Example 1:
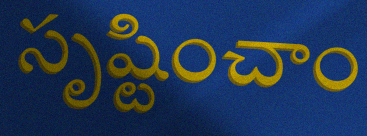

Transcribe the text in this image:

సృష్టించాం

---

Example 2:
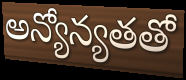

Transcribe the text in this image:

అన్యోన్యతతో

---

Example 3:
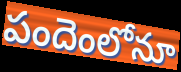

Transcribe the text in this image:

పందెంలోనూ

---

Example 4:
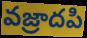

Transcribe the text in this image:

వజ్రాదపి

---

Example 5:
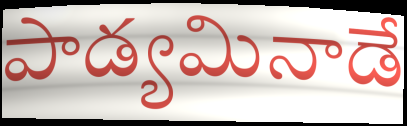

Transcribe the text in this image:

పాడ్యమినాడే